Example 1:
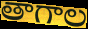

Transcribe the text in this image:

తాగాల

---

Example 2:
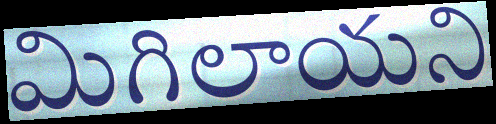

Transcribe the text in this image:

మిగిలాయని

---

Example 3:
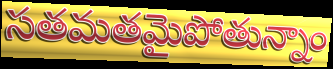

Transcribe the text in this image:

సతమతమైపోతున్నాం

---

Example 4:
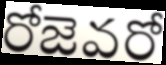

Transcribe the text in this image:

రోజెవరో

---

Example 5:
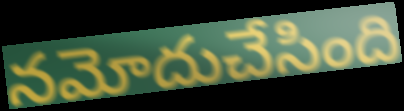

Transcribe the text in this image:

నమోదుచేసింది